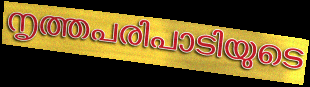
നൃത്തപരിപാടിയുടെ